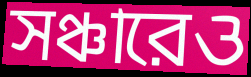
সঞ্চারেও